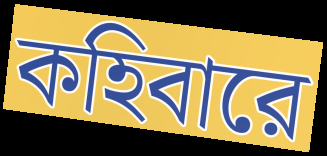
কহিবারে